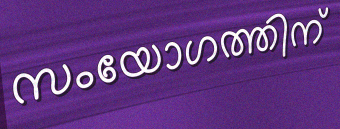
സംയോഗത്തിന്